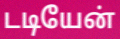
டடியேன்